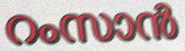
റംസാൻ